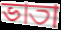
ভাতা